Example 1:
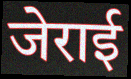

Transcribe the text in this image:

जेराई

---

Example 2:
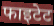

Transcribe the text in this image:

फाइटेट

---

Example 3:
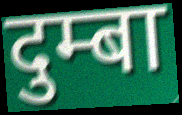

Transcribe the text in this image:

दुम्बा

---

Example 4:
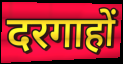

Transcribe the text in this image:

दरगाहों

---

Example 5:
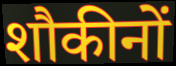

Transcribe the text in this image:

शौकीनों